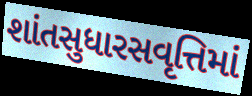
શાંતસુધારસવૃત્તિમાં